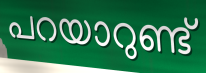
പറയാറുണ്ട്